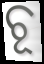
ଚୂ